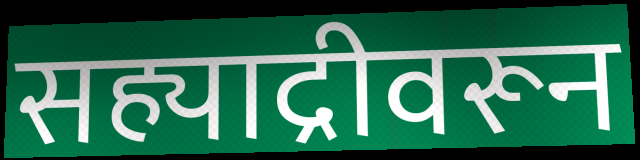
सह्याद्रीवरून